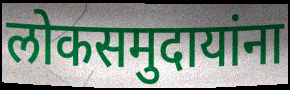
लोकसमुदायांना